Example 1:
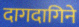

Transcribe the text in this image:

दागदागिने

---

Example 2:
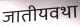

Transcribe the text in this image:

जातीयवथा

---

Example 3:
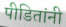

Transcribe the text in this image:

पीडितांनी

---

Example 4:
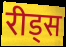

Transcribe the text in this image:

रीड्स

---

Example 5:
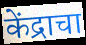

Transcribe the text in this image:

केंद्राचा